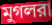
মুগলরা